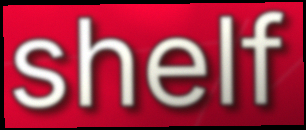
shelf